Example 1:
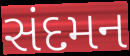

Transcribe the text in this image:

સંદમન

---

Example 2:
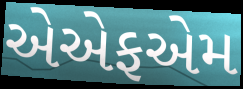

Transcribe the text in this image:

એએફએમ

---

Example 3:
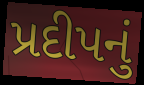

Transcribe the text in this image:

પ્રદીપનું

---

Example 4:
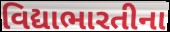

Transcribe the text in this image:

વિદ્યાભારતીના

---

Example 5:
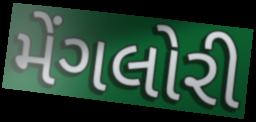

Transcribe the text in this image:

મેંગલોરી